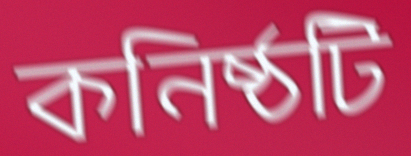
কনিষ্ঠটি